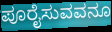
ಪೂರೈಸುವವನೂ